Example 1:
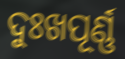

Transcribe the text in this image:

ଦୁଃଖପୂର୍ଣ୍ଣ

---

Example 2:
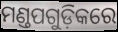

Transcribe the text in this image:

ମଣ୍ଡପଗୁଡ଼ିକରେ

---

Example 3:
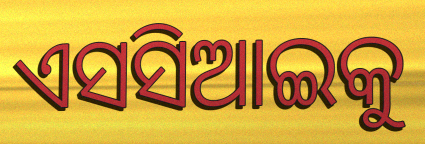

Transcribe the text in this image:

ଏସସିଆଇକୁ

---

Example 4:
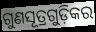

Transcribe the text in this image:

ଗୁଣସୂତ୍ରଗୁଡ଼ିକର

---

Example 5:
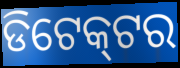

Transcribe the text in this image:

ଡିଟେକ୍‌ଟର